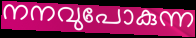
നനവുപോകുന്ന